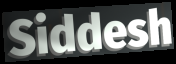
Siddesh